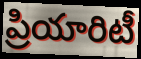
ప్రియారిటీ